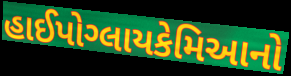
હાઈપોગ્લાયકેમિઆનો